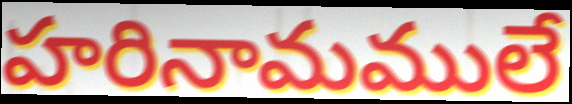
హరినామములే